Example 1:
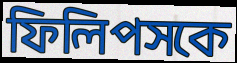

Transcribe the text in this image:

ফিলিপসকে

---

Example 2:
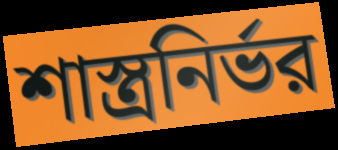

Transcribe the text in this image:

শাস্ত্রনির্ভর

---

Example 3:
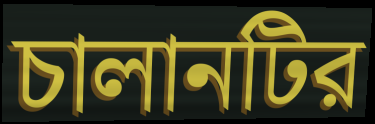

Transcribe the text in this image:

চালানটির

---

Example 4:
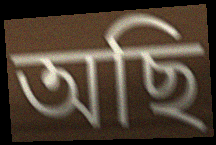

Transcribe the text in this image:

অছি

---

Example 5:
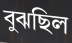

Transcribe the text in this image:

বুঝছিল